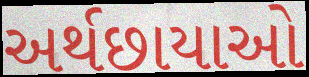
અર્થછાયાઓ